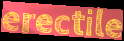
erectile